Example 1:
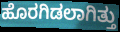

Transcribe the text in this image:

ಹೊರಗಿಡಲಾಗಿತ್ತು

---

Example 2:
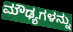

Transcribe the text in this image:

ಮೌಢ್ಯಗಳನ್ನು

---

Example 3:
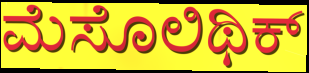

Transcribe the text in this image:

ಮೆಸೊಲಿಥಿಕ್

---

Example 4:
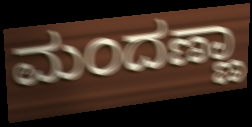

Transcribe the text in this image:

ಮಂದಣ್ಣಾ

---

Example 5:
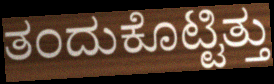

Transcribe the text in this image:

ತಂದುಕೊಟ್ಟಿತ್ತು